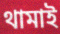
থামাই